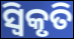
ସ୍ୱିକୃତି